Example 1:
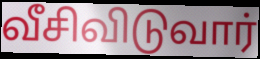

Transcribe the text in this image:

வீசிவிடுவார்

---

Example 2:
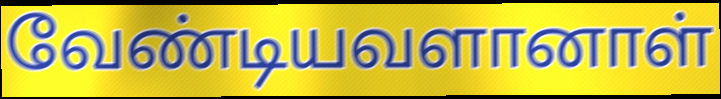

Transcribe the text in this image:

வேண்டியவளானாள்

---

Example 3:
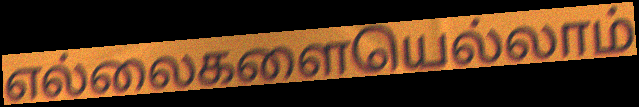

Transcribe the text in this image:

எல்லைகளையெல்லாம்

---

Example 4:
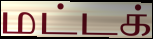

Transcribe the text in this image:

மட்டக்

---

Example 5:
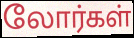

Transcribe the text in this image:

லோர்கள்